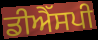
ਡੀਐੱਸਪੀ